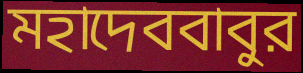
মহাদেববাবুর